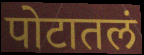
पोटातलं